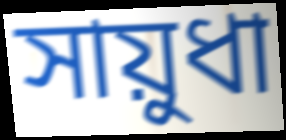
সায়ুধা